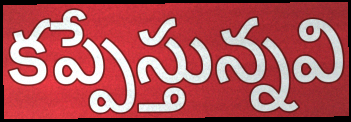
కప్పేస్తున్నవి